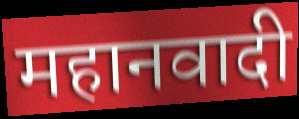
महानवादी